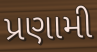
પ્રણામી